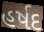
હર્ષદ